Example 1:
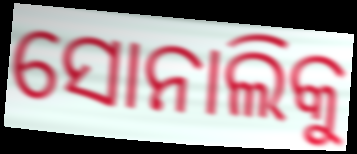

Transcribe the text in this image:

ସୋନାଲିକୁ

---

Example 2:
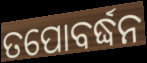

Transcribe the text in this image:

ତପୋବର୍ଦ୍ଧନ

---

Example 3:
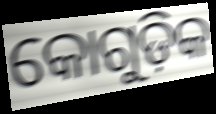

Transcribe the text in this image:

କୋଗୁଡ଼ିକ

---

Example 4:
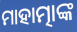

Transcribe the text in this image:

ମାହାତ୍ମାଙ୍କ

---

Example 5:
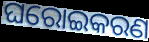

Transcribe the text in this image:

ଘରୋଇକରଣ